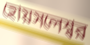
হোয়সলেশ্বর